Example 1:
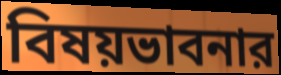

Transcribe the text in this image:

বিষয়ভাবনার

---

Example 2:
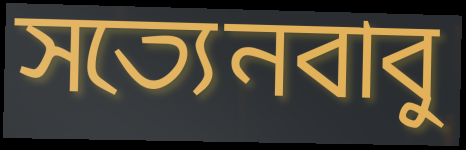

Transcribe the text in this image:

সত্যেনবাবু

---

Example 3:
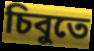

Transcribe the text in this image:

চিবুতে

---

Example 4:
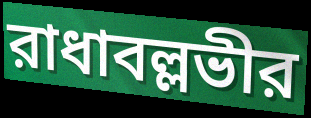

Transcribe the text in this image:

রাধাবল্লভীর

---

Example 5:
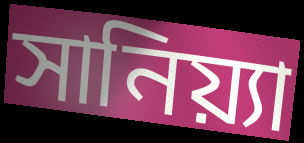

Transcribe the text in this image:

সানিয়্যা